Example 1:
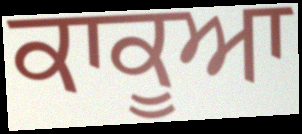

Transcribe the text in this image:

ਕਾਕੂਆ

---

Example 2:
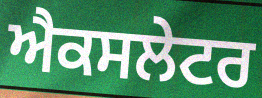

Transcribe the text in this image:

ਐਕਸਲੇਟਰ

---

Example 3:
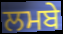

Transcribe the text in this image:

ਲਮਬੇ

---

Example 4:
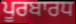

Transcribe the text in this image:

ਪੂਰਬਾਰਧ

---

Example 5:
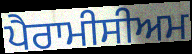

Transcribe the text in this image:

ਪੈਰਾਮੀਸੀਅਮ